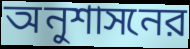
অনুশাসনের